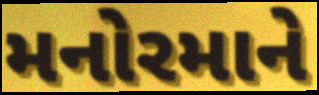
મનોરમાને